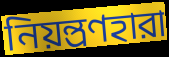
নিয়ন্ত্রণহারা